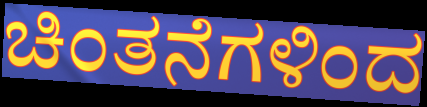
ಚಿಂತನೆಗಳಿಂದ